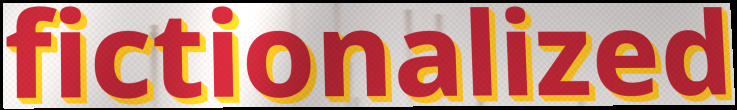
fictionalized